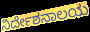
ನಿರ್ದೇಶನಾಲಯ